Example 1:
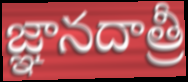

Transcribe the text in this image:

జ్ఞానదాత్రీ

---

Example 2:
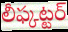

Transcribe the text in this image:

లీఫ్కట్టర్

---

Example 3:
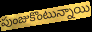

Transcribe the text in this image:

పుంజుకొంటున్నాయి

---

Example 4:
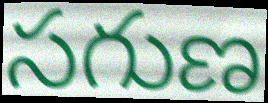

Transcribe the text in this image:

సగుణ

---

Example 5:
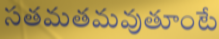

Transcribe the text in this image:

సతమతమవుతూంటే